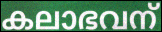
കലാഭവന്